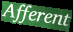
Afferent